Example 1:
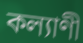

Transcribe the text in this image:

কল্যাণী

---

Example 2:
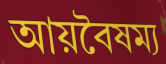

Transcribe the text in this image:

আয়বৈষম্য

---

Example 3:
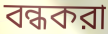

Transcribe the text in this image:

বন্ধকরা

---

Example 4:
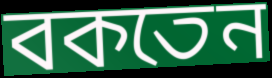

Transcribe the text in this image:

বকতেন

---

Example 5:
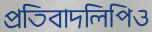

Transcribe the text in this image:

প্রতিবাদলিপিও